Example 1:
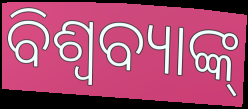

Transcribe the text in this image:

ବିଶ୍ଵବ୍ୟାଙ୍କ୍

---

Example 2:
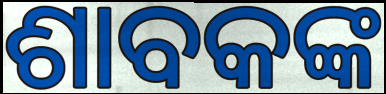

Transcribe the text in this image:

ଶାବକଙ୍କ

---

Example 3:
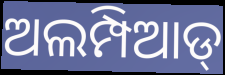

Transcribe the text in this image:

ଅଲମ୍ପିଆଡ୍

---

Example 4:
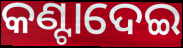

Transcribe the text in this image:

କଣ୍ଟାଦେଇ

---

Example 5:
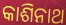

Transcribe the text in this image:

କାଶିନାଥ